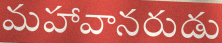
మహావానరుడు